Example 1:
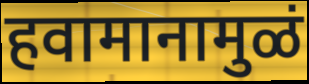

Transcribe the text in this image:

हवामानामुळं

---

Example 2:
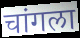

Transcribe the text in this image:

चांगला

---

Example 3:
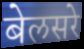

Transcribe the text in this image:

बेलसरे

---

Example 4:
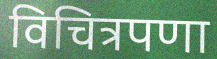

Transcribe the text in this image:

विचित्रपणा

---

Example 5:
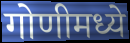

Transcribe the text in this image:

गोणीमध्ये